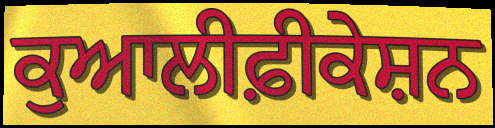
ਕੁਆਲੀਫ਼ੀਕੇਸ਼ਨ